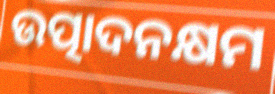
ଉତ୍ପାଦନକ୍ଷମ